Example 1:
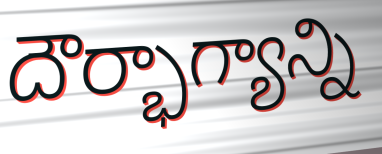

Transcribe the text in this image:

దౌర్భాగ్యాన్ని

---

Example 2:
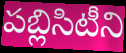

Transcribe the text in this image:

పబ్లిసిటీని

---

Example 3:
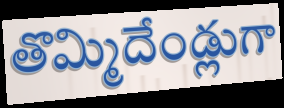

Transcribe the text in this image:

తొమ్మిదేండ్లుగా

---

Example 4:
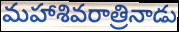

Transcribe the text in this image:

మహాశివరాత్రినాడు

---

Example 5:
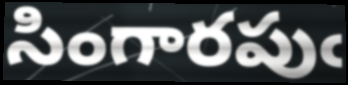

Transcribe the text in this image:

సింగారపుఁ